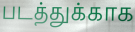
படத்துக்காக